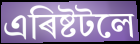
এৰিষ্টটলে